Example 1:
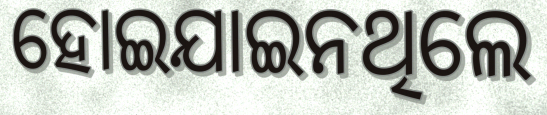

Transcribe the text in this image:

ହୋଇଯାଇନଥିଲେ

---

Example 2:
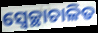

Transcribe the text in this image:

ସ୍ୱେଚ୍ଛାଚାଳିତ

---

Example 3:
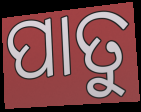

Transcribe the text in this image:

ପାତୁ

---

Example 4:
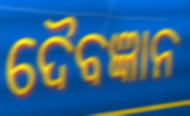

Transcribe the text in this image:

ଦୈବଜ୍ଞାନ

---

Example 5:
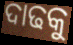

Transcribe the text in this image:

ଦାଢକୁ